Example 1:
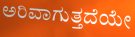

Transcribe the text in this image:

ಅರಿವಾಗುತ್ತದೆಯೇ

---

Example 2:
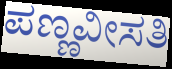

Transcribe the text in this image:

ಪಣ್ಣವೀಸತಿ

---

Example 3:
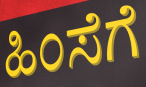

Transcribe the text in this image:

ಹಿಂಸೆಗೆ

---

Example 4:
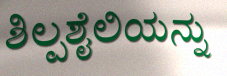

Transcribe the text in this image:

ಶಿಲ್ಪಶೈಲಿಯನ್ನು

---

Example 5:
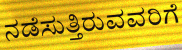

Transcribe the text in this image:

ನಡೆಸುತ್ತಿರುವವರಿಗೆ